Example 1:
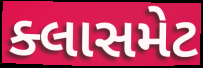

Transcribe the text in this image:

ક્લાસમેટ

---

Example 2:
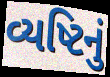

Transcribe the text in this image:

વ્યષ્ટિનું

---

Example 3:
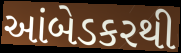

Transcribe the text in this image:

આંબેડકરથી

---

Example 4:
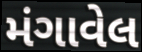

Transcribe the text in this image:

મંગાવેલ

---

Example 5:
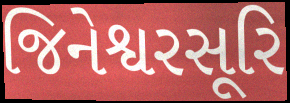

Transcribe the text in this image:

જિનેશ્વરસૂરિ